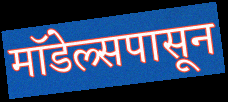
मॉडेल्सपासून